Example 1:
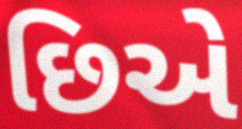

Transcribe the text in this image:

છિએ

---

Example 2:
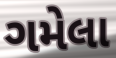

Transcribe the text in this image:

ગમેલા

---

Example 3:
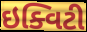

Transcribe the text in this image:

ઇક્વિટી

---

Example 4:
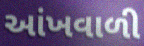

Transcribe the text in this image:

આંખવાળી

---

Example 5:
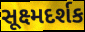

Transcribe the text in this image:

સૂક્ષ્મદર્શક